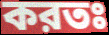
করতঃ